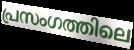
പ്രസംഗത്തിലെ